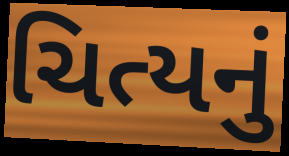
ચિત્યનું